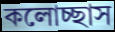
কলোচ্ছাস